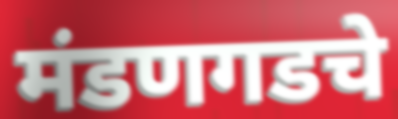
मंडणगडचे